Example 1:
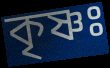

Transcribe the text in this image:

কৃষ্ণঃ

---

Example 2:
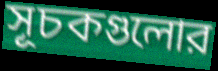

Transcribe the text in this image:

সূচকগুলোর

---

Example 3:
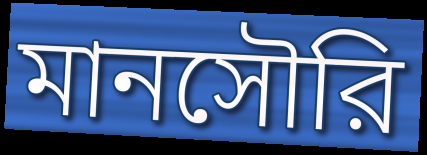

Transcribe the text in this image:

মানসৌরি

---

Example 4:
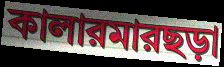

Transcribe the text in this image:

কালারমারছড়া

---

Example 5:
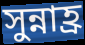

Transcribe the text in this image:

সুন্নাহ্র